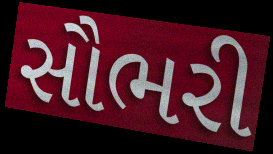
સૌભરી